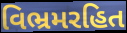
વિભ્રમરહિત